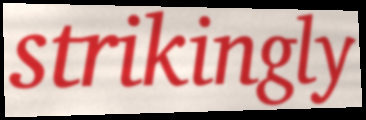
strikingly